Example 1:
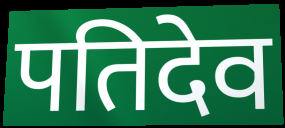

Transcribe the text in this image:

पतिदेव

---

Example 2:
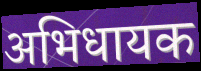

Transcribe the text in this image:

अभिधायक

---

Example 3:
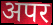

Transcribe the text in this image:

अपर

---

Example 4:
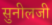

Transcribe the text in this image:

सुनीलजी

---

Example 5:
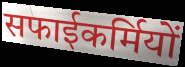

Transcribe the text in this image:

सफाईकर्मियों